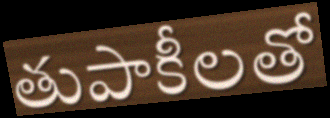
తుపాకీలతో